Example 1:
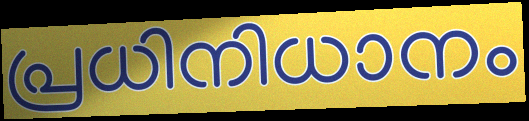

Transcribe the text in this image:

പ്രധിനിധാനം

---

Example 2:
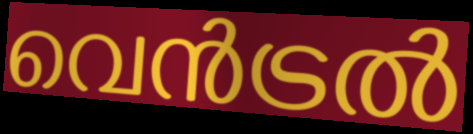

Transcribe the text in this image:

വെൻട്രൽ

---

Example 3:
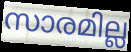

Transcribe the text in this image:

സാരമില്ല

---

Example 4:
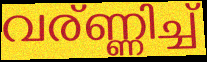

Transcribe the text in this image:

വര്ണ്ണിച്ച്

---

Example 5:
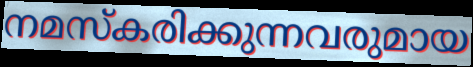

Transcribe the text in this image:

നമസ്കരിക്കുന്നവരുമായ